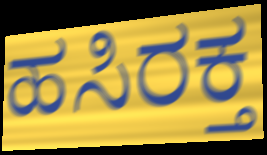
ಹಸಿರಕ್ತ